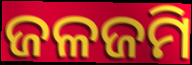
ଜଳଜମି